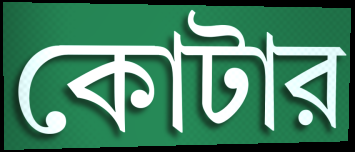
কোটার